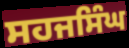
ਸਹਜਸਿੰਘ